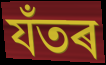
যঁতৰ